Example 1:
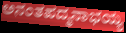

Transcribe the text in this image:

ಅನಂತಪದ್ಮನಾಭಯ್ಯ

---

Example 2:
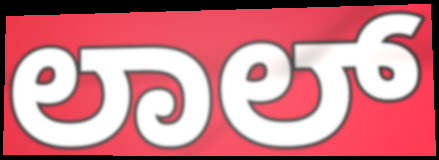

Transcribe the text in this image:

ಲಾಲ್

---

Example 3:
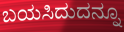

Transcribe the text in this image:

ಬಯಸಿದುದನ್ನೂ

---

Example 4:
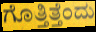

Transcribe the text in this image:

ಗೊತ್ತಿತ್ತೆಂದು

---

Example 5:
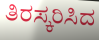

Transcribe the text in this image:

ತಿರಸ್ಕರಿಸಿದ